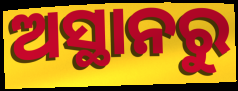
ଅସ୍ଥାନରୁ